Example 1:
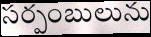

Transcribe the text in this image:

సర్పంబులును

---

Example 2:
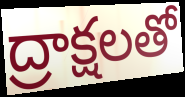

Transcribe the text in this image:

ద్రాక్షలతో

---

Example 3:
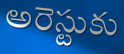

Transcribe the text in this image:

అరెస్టుకు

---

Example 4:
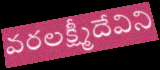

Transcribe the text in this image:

వరలక్ష్మీదేవిని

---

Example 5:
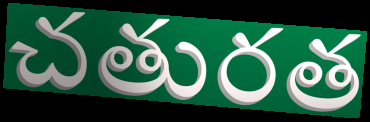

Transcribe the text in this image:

చతురత